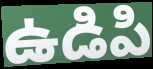
ఉడిపి